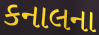
કનાલના